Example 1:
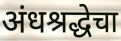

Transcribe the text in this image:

अंधश्रद्धेचा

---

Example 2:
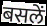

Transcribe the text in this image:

बसलें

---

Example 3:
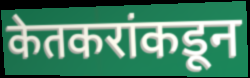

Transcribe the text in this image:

केतकरांकडून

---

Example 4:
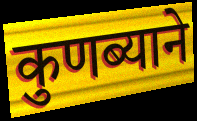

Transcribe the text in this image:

कुणब्याने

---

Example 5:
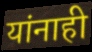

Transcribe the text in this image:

यांनाही